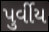
પુર્વીય